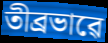
তীব্ৰভাৱে